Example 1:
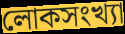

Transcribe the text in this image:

লোকসংখ্যা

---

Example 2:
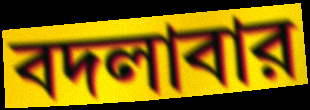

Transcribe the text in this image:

বদলাবার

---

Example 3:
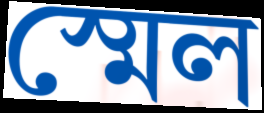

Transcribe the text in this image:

স্মেল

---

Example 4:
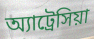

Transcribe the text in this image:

অ্যাট্রেসিয়া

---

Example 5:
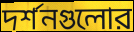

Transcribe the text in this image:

দর্শনগুলোর